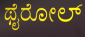
ಥೈರೋಲ್